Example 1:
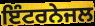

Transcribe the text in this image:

ਇੰਟਰਨੇਜਲ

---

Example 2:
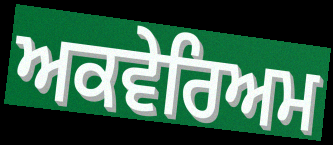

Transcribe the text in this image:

ਅਕਵੇਰਿਅਮ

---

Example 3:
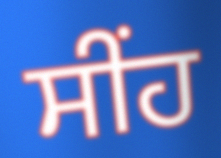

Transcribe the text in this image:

ਸੀਂਹ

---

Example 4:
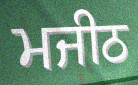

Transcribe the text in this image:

ਮਜੀਠ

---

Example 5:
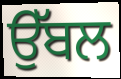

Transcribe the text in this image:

ਉੱਬਲ